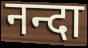
नन्दा